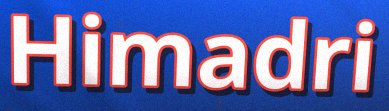
Himadri